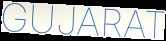
GUJARAT